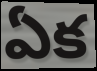
ఏక